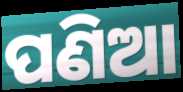
ପଣିଆ